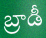
బ్రాడీ